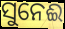
ସୁନେଈ